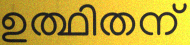
ഉത്ഥിതന്